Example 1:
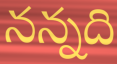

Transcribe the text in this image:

నన్నది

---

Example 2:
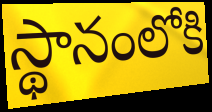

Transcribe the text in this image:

స్థానంలోకి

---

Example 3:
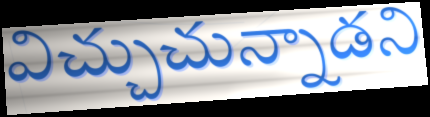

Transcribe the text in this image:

విచ్చుచున్నాడని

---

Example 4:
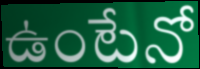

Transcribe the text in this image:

ఉంటేనో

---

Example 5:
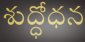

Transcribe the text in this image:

శుద్ధోధన